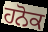
ਹਨੋਕ